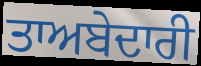
ਤਾਅਬੇਦਾਰੀ